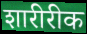
शारीरीक